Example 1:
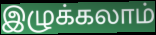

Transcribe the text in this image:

இழுக்கலாம்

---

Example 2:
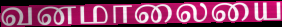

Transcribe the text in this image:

வனமாலையை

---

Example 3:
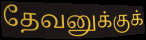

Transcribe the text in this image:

தேவனுக்குக்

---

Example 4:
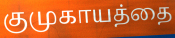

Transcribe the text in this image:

குமுகாயத்தை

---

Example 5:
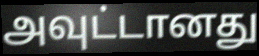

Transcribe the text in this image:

அவுட்டானது